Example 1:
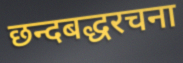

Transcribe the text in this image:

छन्दबद्धरचना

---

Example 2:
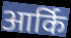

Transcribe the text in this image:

आर्कि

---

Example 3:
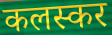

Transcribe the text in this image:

कलस्कर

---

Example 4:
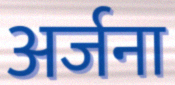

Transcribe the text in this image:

अर्जना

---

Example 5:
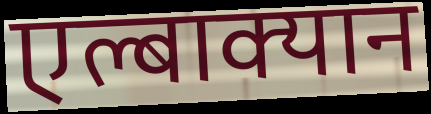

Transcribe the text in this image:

एल्बाक्यान